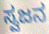
ಸ್ವಜನ